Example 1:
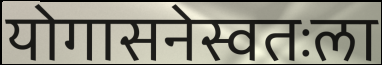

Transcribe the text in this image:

योगासनेस्वतःला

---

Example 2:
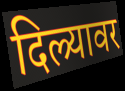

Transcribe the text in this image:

दिल्यावर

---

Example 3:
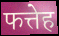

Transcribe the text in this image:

फत्तेह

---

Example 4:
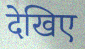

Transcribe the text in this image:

देखिए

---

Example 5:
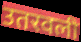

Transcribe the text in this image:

उतरवली